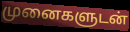
முனைகளுடன்